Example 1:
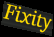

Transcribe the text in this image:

Fixity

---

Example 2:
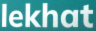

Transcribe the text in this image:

lekhat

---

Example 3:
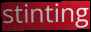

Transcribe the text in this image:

stinting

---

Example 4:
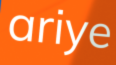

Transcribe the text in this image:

ariye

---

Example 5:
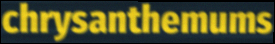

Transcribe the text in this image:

chrysanthemums